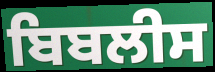
ਬਿਬਲੀਸ